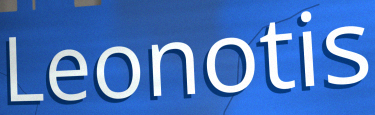
Leonotis